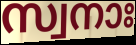
സ്വനാഃ